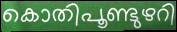
കൊതിപൂണ്ടുഴറി